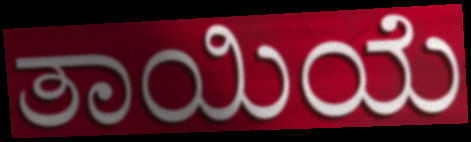
ತಾಯಿಯೆ